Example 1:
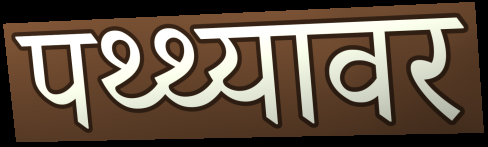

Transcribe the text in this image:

पथ्थ्यावर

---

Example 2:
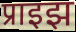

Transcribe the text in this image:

प्राइझ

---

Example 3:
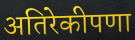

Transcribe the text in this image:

अतिरेकीपणा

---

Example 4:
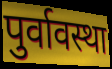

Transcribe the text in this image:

पुर्वावस्था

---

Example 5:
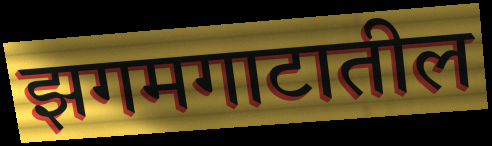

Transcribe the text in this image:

झगमगाटातील